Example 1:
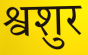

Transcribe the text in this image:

श्वशुर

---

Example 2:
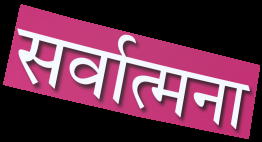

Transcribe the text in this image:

सर्वात्मना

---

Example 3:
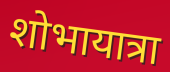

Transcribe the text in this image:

शोभायात्रा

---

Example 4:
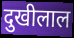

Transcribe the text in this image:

दुखीलाल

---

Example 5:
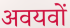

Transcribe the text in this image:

अवयवों